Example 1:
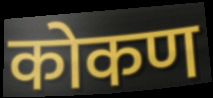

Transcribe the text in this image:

कोकण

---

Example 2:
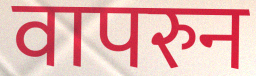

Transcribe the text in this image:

वापरुन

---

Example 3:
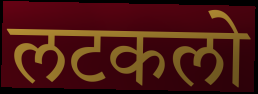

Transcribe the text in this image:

लटकलो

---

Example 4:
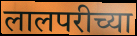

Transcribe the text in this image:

लालपरीच्या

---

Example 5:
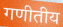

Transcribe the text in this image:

गणीतीय